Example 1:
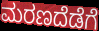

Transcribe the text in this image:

ಮರಣದೆಡೆಗೆ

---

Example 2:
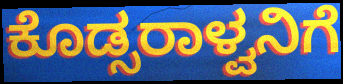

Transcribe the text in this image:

ಕೊಡ್ಸರಾಳ್ವನಿಗೆ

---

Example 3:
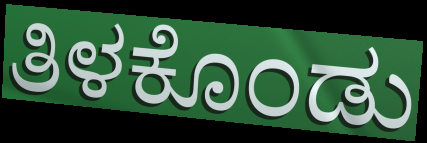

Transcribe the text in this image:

ತಿಳಕೊಂಡು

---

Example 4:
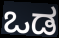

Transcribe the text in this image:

ಒಡ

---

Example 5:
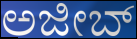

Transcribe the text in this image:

ಅಜೀಬ್